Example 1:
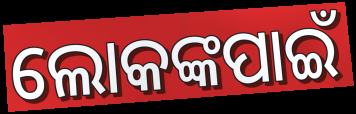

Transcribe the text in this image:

ଲୋକଙ୍କପାଇଁ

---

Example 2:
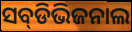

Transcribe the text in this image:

ସବ୍‌ଡିଭିଜନାଲ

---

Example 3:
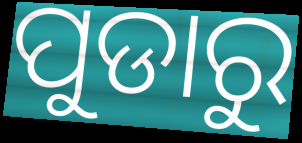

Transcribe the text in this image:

ପୁଡାରୁ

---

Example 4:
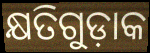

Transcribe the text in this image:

କ୍ଷତିଗୁଡ଼ାକ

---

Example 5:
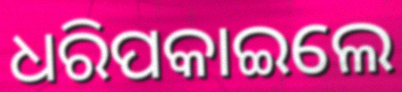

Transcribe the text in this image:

ଧରିପକାଇଲେ